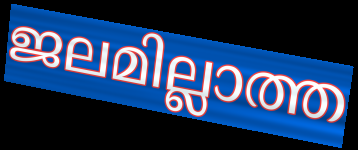
ജലമില്ലാത്ത